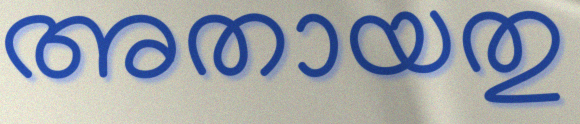
അതായതു